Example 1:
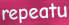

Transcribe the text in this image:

repeatu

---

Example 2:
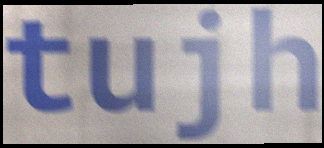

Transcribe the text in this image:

tujh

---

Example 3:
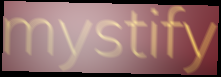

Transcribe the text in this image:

mystify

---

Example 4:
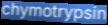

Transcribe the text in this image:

chymotrypsin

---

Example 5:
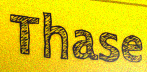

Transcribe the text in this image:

Thase